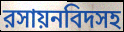
রসায়নবিদসহ